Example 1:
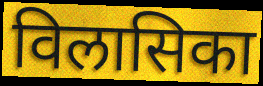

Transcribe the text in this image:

विलासिका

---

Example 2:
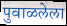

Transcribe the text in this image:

पुवाळलेला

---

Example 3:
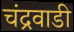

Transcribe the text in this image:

चंद्रवाडी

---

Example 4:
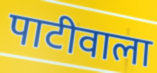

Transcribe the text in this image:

पाटीवाला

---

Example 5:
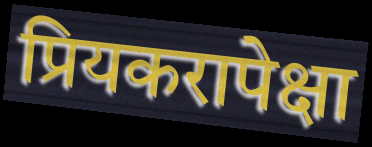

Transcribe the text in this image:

प्रियकरापेक्षा